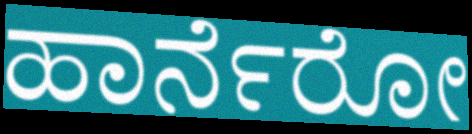
ಹಾರ್ನೆರೋ